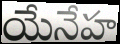
యేనేహ